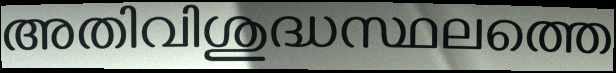
അതിവിശുദ്ധസ്ഥലത്തെ